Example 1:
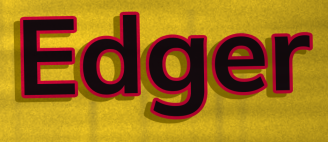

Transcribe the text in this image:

Edger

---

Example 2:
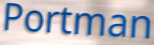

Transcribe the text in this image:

Portman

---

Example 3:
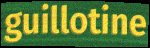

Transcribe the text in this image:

guillotine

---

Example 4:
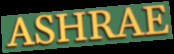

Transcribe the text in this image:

ASHRAE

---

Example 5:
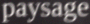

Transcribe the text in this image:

paysage